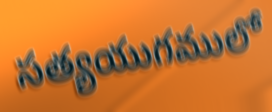
సత్యయుగములో